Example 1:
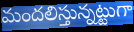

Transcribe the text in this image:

మందలిస్తున్నట్టుగా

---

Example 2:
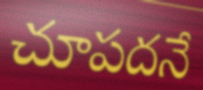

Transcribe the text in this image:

చూపదనే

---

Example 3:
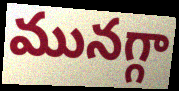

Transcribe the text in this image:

మునగ్గా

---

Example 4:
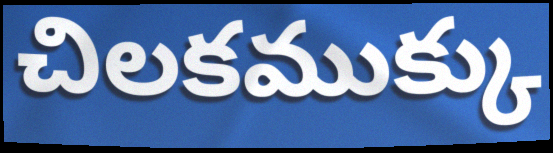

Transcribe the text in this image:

చిలకముక్కు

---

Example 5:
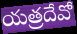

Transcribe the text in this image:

యత్రదేవో